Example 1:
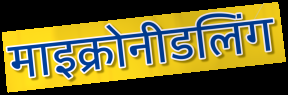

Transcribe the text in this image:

माइक्रोनीडलिंग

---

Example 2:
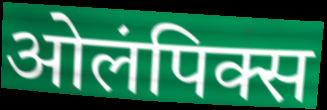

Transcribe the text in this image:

ओलंपिक्स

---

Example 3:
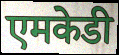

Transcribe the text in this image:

एमकेडी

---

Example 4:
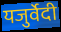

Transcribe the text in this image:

यजुर्वेदी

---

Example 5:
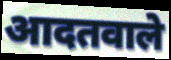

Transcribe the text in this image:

आदतवाले